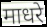
माधरे